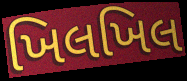
ખિલખિલ